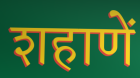
शहाणें